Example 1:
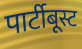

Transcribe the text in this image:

पार्टीबूस्ट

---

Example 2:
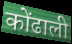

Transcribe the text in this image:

कोंढाली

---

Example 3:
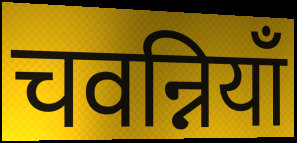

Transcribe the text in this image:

चवन्नियाँ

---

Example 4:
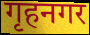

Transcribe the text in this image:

गृहनगर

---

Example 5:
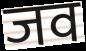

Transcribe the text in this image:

जव